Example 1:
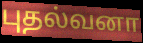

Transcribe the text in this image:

புதல்வனா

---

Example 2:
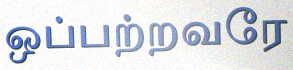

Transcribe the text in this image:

ஒப்பற்றவரே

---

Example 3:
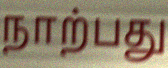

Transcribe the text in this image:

நாற்பது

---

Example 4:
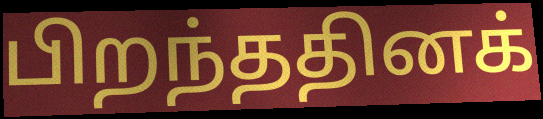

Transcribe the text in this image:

பிறந்ததினக்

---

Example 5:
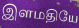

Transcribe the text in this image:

இளமதியே